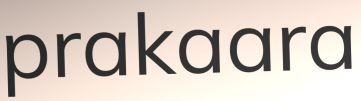
prakaara